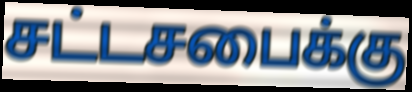
சட்டசபைக்கு